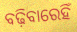
ବଢ଼ିବାରେହିଁ